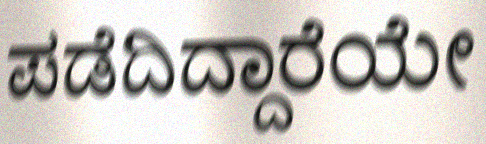
ಪಡೆದಿದ್ದಾರೆಯೇ